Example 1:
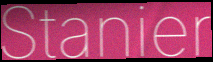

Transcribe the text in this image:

Stanier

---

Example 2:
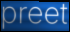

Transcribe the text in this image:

preet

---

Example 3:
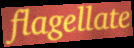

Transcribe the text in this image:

flagellate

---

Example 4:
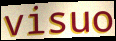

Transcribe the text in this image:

visuo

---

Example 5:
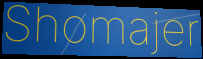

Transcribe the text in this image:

Shomajer